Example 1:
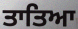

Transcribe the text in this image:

ਤਾਤਿਆ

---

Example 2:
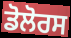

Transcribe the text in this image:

ਡੋਲੋਰਸ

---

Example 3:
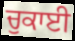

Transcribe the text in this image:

ਚੁਕਾਈ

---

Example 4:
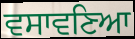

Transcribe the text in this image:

ਵਸਾਵਣਿਆ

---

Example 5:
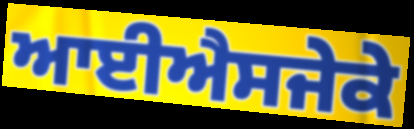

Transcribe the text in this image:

ਆਈਐਸਜੇਕੇ